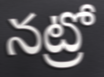
నట్రో